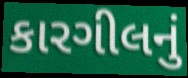
કારગીલનું